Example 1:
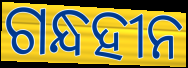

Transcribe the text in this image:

ଗନ୍ଧହୀନ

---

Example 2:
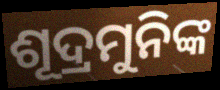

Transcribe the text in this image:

ଶୂଦ୍ରମୁନିଙ୍କ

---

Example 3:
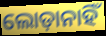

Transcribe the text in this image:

ଲୋଡ଼ାନାହିଁ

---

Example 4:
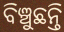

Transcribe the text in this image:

ବିଞ୍ଚୁଛନ୍ତି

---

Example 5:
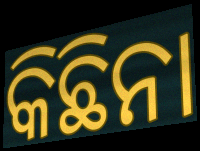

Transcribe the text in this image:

କିଛିନା